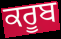
ਕਰੂਬ